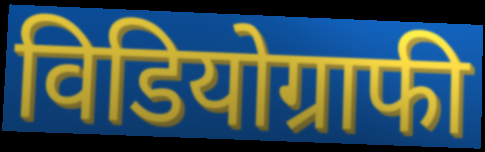
विडियोग्राफी